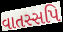
વાતસ્સપિ